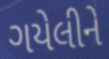
ગયેલીને